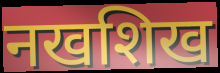
नखशिख